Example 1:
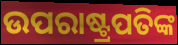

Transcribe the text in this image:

ଉପରାଷ୍ଟ୍ରପତିଙ୍କ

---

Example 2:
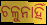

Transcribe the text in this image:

ଚଳୁନାହିଁ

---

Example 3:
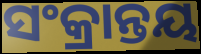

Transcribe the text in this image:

ସଂକ୍ରାନ୍ତୟ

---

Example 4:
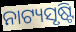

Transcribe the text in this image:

ନାଟ୍ୟସୃଷ୍ଟି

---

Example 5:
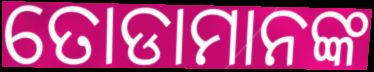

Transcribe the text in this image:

ତୋଡାମାନଙ୍କ